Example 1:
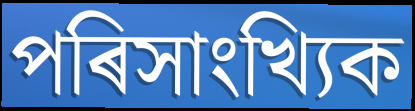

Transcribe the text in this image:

পৰিসাংখ্যিক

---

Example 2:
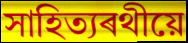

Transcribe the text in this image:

সাহিত্যৰথীয়ে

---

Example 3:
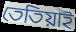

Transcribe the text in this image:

তেতিয়াই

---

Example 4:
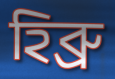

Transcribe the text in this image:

হিব্ৰু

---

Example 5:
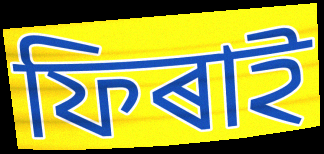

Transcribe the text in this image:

ফিৰাই